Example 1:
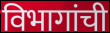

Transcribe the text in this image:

विभागांची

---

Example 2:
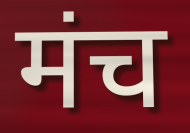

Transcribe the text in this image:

मंच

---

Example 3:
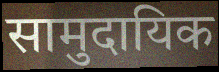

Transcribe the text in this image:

सामुदायिक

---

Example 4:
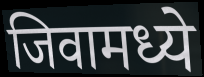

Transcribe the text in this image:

जिवामध्ये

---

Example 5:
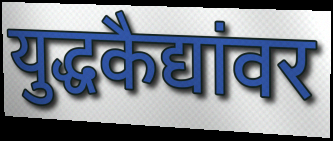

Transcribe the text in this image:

युद्धकैद्यांवर